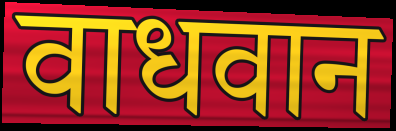
वाधवान